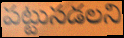
పట్టుసడలని